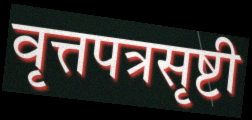
वृत्तपत्रसृष्टी